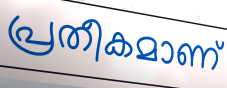
പ്രതീകമാണ്